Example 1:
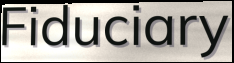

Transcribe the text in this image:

Fiduciary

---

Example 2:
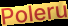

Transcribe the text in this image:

Poleru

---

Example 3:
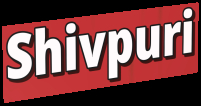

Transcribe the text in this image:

Shivpuri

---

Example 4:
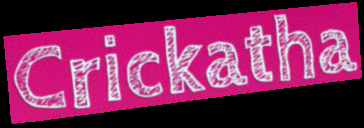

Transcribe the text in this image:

Crickatha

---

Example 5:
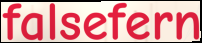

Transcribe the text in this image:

falsefern